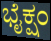
ಭೈಕ್ಷಂ